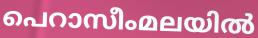
പെറാസീംമലയിൽ